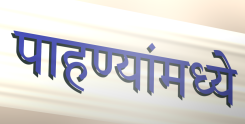
पाहण्यांमध्ये